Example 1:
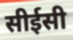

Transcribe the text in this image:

सीईसी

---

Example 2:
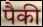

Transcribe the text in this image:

पैकी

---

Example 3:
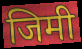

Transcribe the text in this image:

जिमी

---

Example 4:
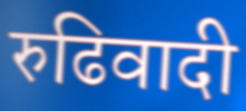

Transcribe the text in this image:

रुढिवादी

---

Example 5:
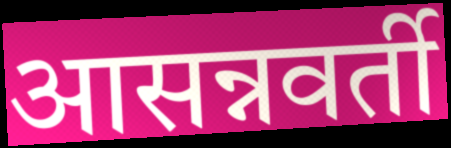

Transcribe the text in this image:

आसन्नवर्ती